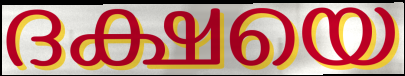
ദക്ഷയെ